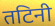
तटिनी